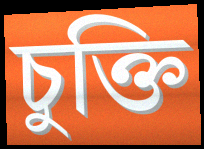
চুক্তি